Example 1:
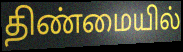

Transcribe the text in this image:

திண்மையில்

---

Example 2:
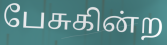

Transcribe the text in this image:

பேசுகின்ற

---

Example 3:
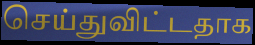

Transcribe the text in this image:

செய்துவிட்டதாக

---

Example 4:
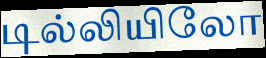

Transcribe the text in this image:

டில்லியிலோ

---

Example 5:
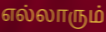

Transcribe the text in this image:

எல்லாரும்